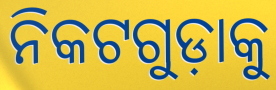
ନିକଟଗୁଡ଼ାକୁ